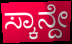
ಸ್ಕಾನ್ದೇ